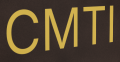
CMTI